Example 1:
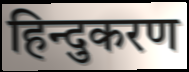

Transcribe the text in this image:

हिन्दुकरण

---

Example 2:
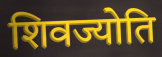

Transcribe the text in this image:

शिवज्योति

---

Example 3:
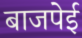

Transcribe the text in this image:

बाजपेई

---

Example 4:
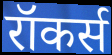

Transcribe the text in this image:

रॉकर्स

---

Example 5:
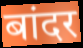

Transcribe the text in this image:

बांदर